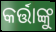
କର୍ତ୍ତାଙ୍କୁ